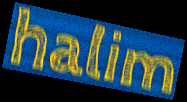
halim